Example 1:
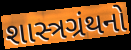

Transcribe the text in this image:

શાસ્ત્રગ્રંથનો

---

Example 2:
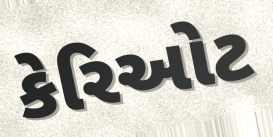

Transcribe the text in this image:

કેરિઓટ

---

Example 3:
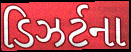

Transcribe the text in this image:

ડિઝર્ટના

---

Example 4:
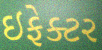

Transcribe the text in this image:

ઇફેક્ટર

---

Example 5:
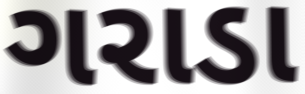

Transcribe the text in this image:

ગરાડા